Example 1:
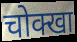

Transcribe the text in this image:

चोक्खा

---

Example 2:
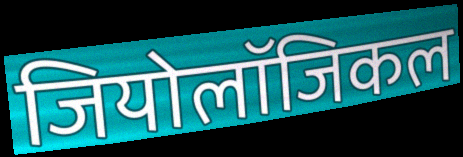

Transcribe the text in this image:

जियोलॉजिकल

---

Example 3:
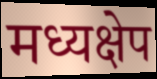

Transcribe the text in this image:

मध्यक्षेप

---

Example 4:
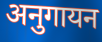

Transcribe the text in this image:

अनुगायन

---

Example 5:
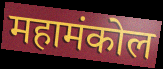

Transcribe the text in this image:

महामंकोल